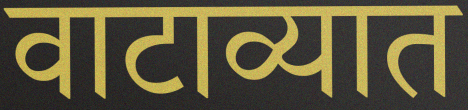
वाटाव्यात